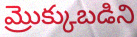
మ్రొక్కుబడిని